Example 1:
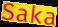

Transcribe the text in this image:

Saka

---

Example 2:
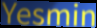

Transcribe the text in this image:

Yesmin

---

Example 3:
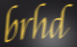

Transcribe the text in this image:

brhd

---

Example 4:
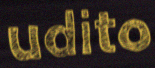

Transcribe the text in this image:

udito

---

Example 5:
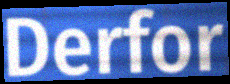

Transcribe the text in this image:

Derfor